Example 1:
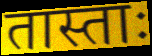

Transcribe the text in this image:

तास्ताः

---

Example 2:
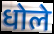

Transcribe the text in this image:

धोले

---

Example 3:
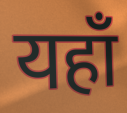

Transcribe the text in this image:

यहाँ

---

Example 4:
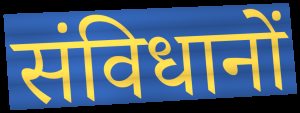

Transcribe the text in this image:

संविधानों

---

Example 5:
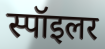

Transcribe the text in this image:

स्पॉइलर